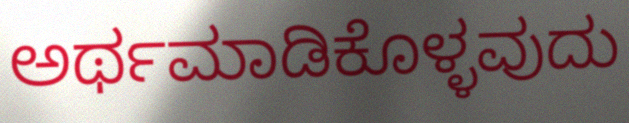
ಅರ್ಥಮಾಡಿಕೊಳ್ಳವುದು